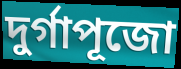
দুর্গাপূজো